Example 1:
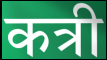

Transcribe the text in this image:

कत्री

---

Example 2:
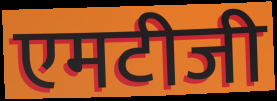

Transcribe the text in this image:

एमटीजी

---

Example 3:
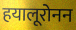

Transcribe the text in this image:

हयालूरोनन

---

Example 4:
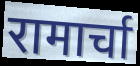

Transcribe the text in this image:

रामार्चा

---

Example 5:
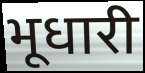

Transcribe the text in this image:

भूधारी